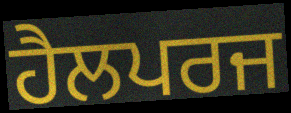
ਹੈਲਪਰਜ